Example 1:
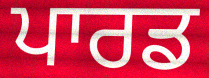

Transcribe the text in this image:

ਪਾਰਡ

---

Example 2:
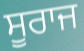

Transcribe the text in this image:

ਸੂਰਾਜ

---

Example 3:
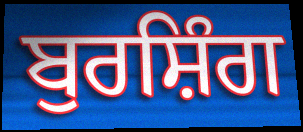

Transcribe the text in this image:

ਬੁਰਸ਼ਿੰਗ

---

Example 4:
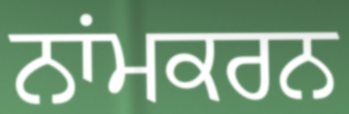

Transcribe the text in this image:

ਨਾਂਮਕਰਨ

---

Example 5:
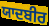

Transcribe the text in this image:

ਯਾਦਬੀਰ